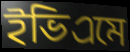
ইভিএমে